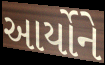
આર્યોને